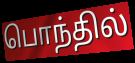
பொந்தில்